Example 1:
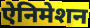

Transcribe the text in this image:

ऐनिमेशन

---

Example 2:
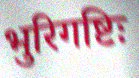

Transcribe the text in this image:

भुरिगष्टिः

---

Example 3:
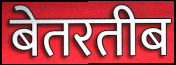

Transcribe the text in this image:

बेतरतीब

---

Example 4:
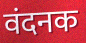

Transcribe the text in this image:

वंदनक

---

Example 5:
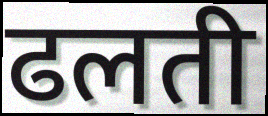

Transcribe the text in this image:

ढलती